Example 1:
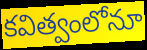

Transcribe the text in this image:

కవిత్వంలోనూ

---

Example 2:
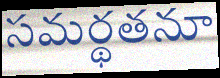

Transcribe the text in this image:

సమర్థతనూ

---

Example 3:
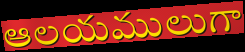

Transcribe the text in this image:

ఆలయములుగా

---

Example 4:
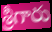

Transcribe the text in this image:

శ్రీగారు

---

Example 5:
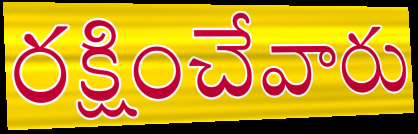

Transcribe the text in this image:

రక్షించేవారు